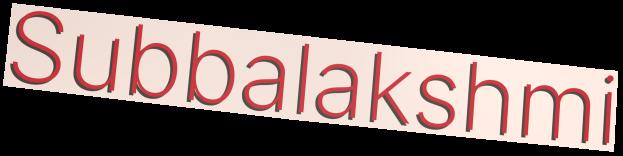
Subbalakshmi